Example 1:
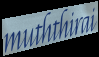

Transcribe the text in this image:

muththirai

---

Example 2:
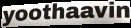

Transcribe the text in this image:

yoothaavin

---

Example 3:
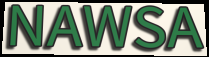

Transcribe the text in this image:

NAWSA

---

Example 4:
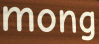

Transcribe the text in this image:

mong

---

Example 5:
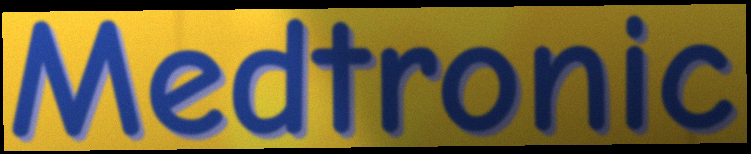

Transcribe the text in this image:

Medtronic